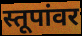
स्तूपांवर